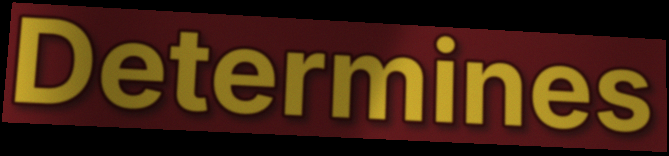
Determines